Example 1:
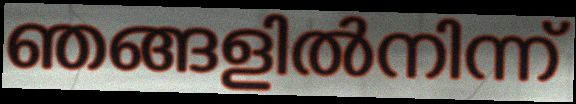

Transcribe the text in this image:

ഞങ്ങളിൽനിന്ന്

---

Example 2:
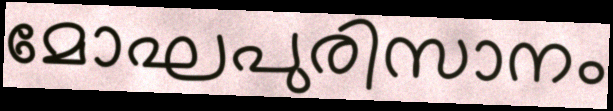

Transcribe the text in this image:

മോഘപുരിസാനം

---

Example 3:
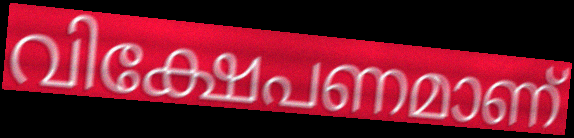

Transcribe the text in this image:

വിക്ഷേപണമാണ്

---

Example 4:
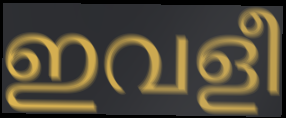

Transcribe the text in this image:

ഇവളീ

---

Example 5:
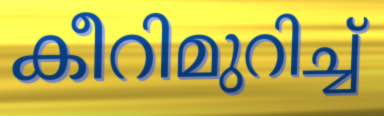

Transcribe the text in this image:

കീറിമുറിച്ച്